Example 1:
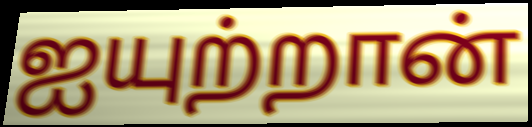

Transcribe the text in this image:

ஐயுற்றான்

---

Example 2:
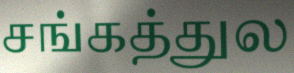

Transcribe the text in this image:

சங்கத்துல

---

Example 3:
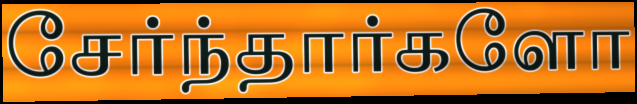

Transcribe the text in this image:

சேர்ந்தார்களோ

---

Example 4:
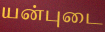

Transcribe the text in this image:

யன்புடை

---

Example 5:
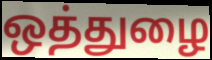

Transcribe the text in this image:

ஒத்துழை